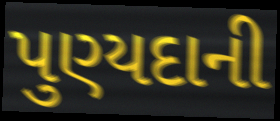
પુણ્યદાની